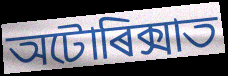
অটোৰিক্সাত